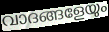
വാദങ്ങളേയും